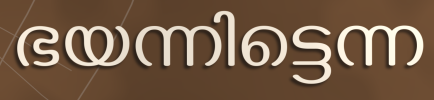
ഭയന്നിട്ടെന്ന